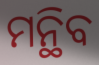
ମନ୍ଥିବ